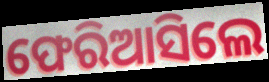
ଫେରିଆସିଲେ